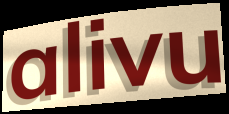
alivu